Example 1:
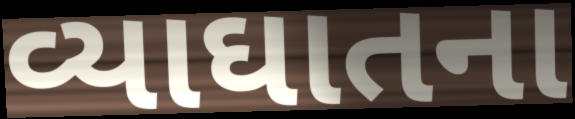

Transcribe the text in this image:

વ્યાઘાતના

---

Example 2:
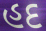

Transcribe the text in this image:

હદ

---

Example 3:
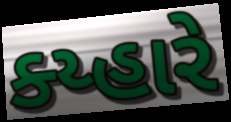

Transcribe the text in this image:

ક્ય્હારે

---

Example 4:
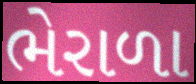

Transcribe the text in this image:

ભેરાળા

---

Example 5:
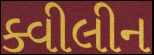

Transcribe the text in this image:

ક્વીલીન